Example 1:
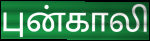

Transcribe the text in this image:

புன்காலி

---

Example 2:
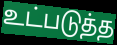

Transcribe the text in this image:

உட்படுத்த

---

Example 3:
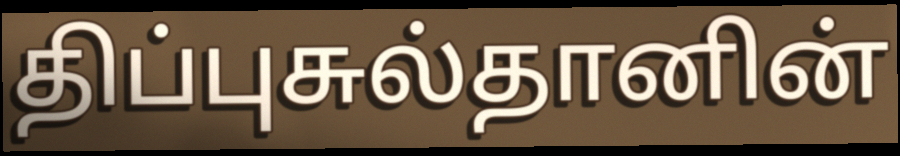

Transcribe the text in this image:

திப்புசுல்தானின்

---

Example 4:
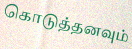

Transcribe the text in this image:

கொடுத்தனவும்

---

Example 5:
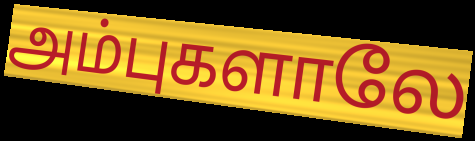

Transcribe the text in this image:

அம்புகளாலே